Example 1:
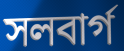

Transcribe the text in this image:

সলবার্গ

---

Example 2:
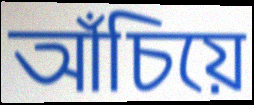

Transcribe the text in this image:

আঁচিয়ে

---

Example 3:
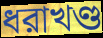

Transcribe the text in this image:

ধরাখণ্ড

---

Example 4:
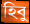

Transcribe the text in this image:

হিবু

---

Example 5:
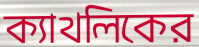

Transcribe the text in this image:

ক্যাথলিকের